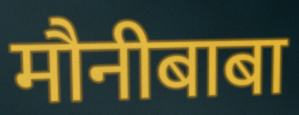
मौनीबाबा